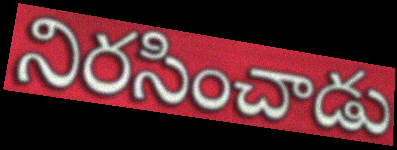
నిరసించాడు